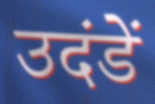
उदंडें